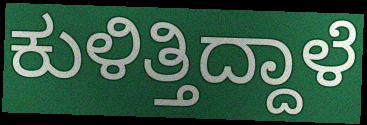
ಕುಳಿತ್ತಿದ್ದಾಳೆ